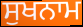
ਸੁਖਨਾਮ